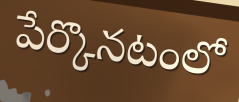
పేర్కొనటంలో